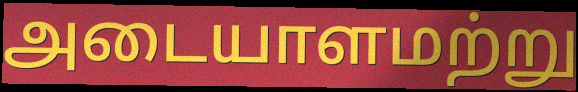
அடையாளமற்று